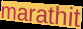
marathit